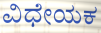
ವಿಧೇಯಕ